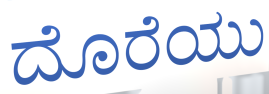
ದೊರೆಯು